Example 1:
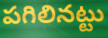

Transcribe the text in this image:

పగిలినట్టు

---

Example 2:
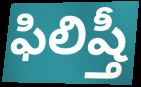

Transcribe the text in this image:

ఫిలిష్తీ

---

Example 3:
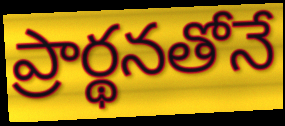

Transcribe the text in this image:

ప్రార్థనతోనే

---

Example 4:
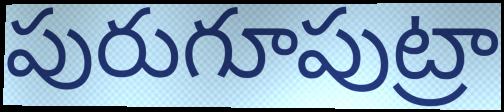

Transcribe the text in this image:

పురుగూపుట్రా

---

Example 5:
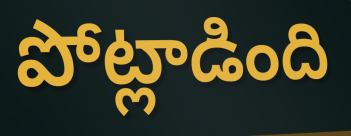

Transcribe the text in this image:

పోట్లాడింది